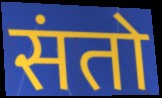
संतो